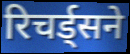
रिचर्ड्सने